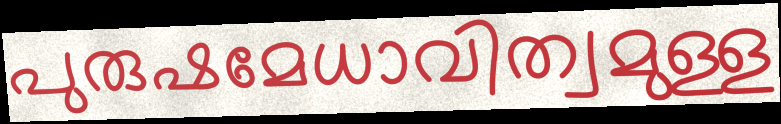
പുരുഷമേധാവിത്വമുള്ള